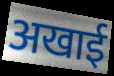
अखाई